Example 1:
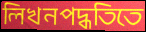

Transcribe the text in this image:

লিখনপদ্ধতিতে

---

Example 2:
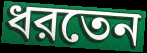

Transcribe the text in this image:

ধরতেন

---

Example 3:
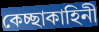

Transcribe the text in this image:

কেচ্ছাকাহিনী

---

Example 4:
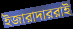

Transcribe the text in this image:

ইজারাদাররাই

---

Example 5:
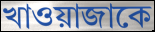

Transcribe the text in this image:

খাওয়াজাকে